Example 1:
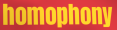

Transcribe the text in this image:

homophony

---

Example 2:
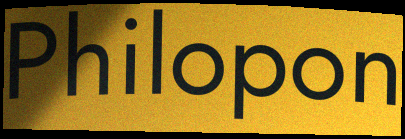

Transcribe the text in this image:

Philopon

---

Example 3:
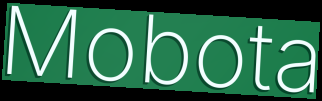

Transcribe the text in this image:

Mobota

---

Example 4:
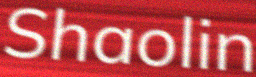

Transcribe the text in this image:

Shaolin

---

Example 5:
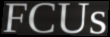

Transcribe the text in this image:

FCUs